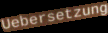
Uebersetzung